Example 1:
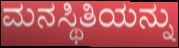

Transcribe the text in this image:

ಮನಸ್ಥಿತಿಯನ್ನು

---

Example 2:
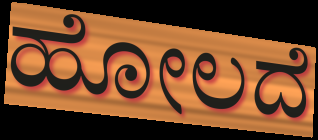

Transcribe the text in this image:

ಹೋಲದೆ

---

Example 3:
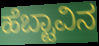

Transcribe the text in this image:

ಹೆಬ್ಟಾವಿನ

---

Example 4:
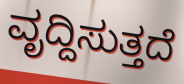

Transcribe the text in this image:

ವೃದ್ದಿಸುತ್ತದೆ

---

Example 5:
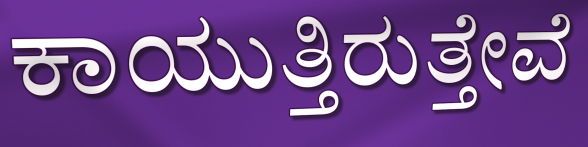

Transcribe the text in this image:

ಕಾಯುತ್ತಿರುತ್ತೇವೆ